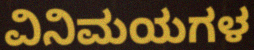
ವಿನಿಮಯಗಳ